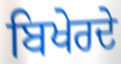
ਬਿਖੇਰਦੇ